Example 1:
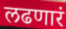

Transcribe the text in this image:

लढणारं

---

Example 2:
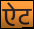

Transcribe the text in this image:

ऐट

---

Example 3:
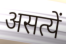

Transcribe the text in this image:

असत्यें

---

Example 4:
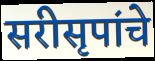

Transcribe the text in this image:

सरीसृपांचे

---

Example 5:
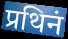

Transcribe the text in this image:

प्रथिनं